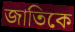
জাতিকে